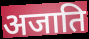
अजाति